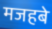
मजहबे